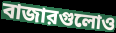
বাজারগুলোও